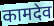
कामदेव